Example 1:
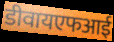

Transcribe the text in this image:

डीवायएफआई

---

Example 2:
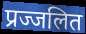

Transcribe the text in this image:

प्रज्जलित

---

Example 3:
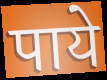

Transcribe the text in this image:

पाये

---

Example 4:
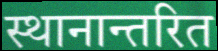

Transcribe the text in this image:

स्थानान्तरित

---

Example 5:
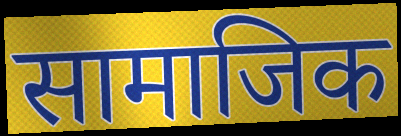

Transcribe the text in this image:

सामाजिक